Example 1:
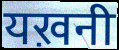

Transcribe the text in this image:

यख़नी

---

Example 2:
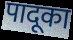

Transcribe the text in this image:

पादूका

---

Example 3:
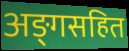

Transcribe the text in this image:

अङ्गसहित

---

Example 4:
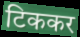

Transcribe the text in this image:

टिककर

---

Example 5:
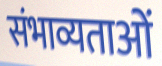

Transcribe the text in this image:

संभाव्यताओं